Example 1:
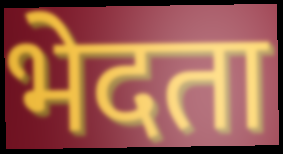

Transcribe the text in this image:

भेदता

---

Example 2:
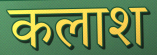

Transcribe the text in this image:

कलाश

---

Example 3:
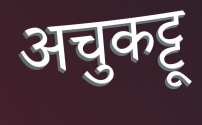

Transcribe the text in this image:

अचुकट्टू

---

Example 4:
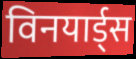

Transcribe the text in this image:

विनयार्ड्स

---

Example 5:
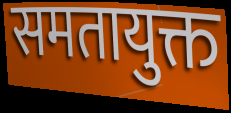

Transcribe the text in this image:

समतायुक्त